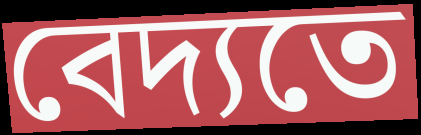
বেদ্যতে